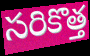
సరికొత్త